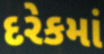
દરેકમાં